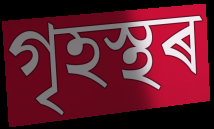
গৃহস্থৰ